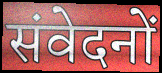
संवेदनों